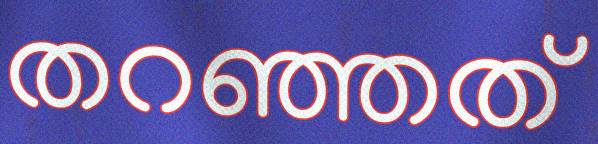
തറഞ്ഞത്